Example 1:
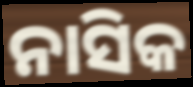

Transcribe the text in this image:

ନାସିକ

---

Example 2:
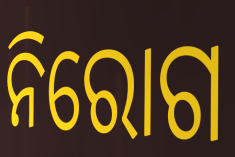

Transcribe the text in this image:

ନିରୋଗ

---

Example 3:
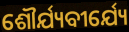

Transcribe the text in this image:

ଶୌର୍ଯ୍ୟବୀର୍ଯ୍ୟେ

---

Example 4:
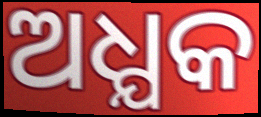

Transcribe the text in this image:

ଅଧ୍ଯକ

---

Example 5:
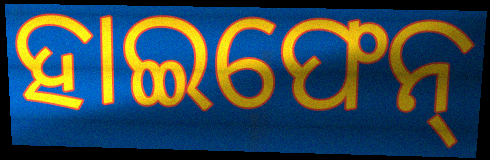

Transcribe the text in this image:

ହାଇଫେନ୍